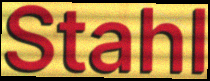
Stahl